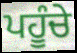
ਪਹੂੰਚੇ